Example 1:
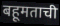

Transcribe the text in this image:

बहूमताची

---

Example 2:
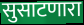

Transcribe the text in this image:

सुसाटणारा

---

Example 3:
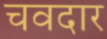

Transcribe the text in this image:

चवदार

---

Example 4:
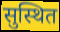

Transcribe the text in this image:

सुस्थित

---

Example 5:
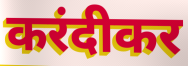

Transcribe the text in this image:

करंदीकर